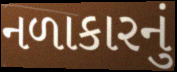
નળાકારનું